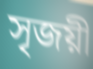
সৃজয়ী